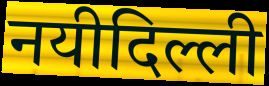
नयीदिल्ली